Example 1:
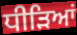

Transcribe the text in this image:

ਧੀੜਿਆਂ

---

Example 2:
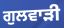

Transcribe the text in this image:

ਗੁਲਵਾੜੀ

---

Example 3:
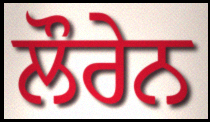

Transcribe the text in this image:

ਲੌਰੇਨ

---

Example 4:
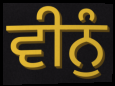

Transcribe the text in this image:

ਵੀਨੁੰ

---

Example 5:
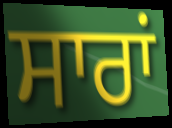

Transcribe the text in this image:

ਸਾਰਾਂ